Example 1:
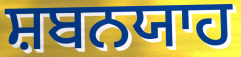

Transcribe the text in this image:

ਸ਼ਬਨਯਾਹ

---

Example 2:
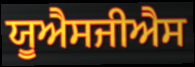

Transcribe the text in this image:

ਯੂਐਸਜੀਐਸ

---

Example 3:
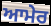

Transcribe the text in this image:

ਆਮੇਰ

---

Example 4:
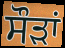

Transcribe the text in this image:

ਸੌੜਾਂ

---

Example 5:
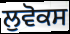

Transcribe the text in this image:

ਲੁਵੋਕਸ